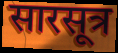
सारसूत्र